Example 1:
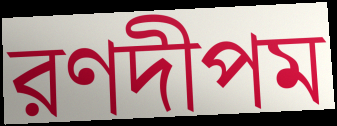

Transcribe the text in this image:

রণদীপম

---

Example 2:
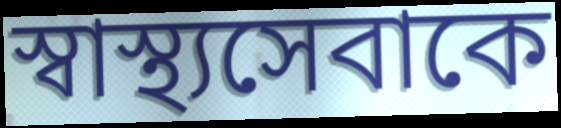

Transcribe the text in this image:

স্বাস্থ্যসেবাকে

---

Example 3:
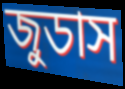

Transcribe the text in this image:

জুডাস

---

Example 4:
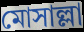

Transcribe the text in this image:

মোসাল্লা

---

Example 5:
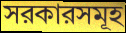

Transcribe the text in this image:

সরকারসমূহ